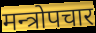
मन्त्रोपचार